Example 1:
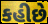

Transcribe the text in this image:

કહીછે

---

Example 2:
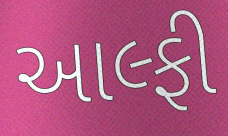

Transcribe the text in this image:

આલ્ફી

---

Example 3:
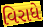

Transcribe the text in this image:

વિરાધે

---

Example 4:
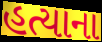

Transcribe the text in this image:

હત્યાના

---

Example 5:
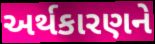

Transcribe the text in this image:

અર્થકારણને